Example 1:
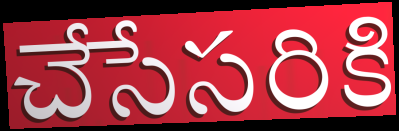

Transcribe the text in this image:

చేసేసరికి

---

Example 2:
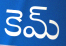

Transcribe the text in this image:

కెమ్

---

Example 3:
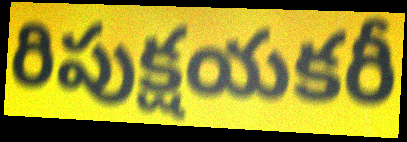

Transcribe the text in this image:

రిపుక్షయకరీ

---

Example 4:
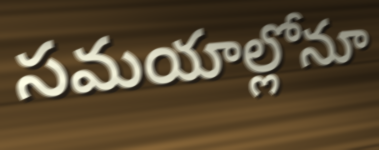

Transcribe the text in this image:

సమయాల్లోనూ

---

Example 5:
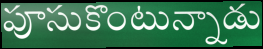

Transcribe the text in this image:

పూసుకొంటున్నాడు